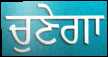
ਚੁਣੇਗਾ